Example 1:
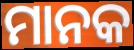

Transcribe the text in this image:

ମାନକ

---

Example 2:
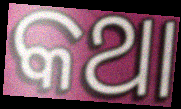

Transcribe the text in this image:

କଥା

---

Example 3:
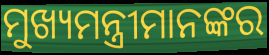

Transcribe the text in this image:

ମୁଖ୍ୟମନ୍ତ୍ରୀମାନଙ୍କର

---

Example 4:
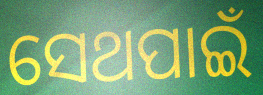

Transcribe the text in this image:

ସେଥପାଇଁ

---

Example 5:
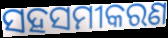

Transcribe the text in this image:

ସହସମୀକରଣ